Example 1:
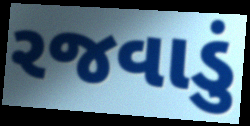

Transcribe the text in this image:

રજવાડું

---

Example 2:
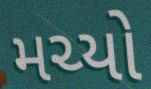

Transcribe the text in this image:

મચ્યો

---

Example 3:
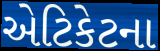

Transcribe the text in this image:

એટિકેટના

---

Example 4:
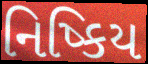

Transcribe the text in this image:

નિષ્કિય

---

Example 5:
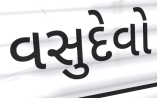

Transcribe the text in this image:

વસુદેવો